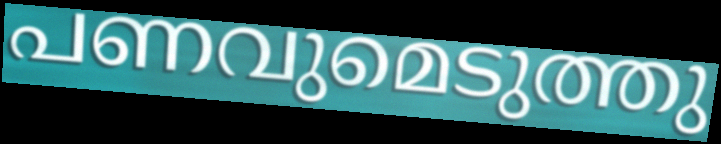
പണവുമെടുത്തു